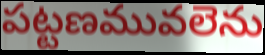
పట్టణమువలెను